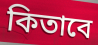
কিতাবে